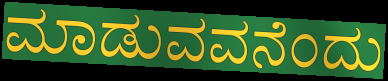
ಮಾಡುವವನೆಂದು